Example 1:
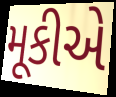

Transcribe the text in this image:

મૂકીએ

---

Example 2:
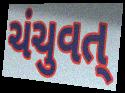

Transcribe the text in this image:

ચંચુવત્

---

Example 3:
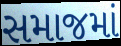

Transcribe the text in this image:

સમાજમાં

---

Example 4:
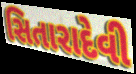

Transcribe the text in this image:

સિતારાદેવી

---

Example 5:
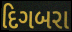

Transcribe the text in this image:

દિગબરા